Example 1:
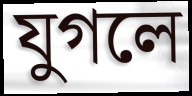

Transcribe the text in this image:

যুগলে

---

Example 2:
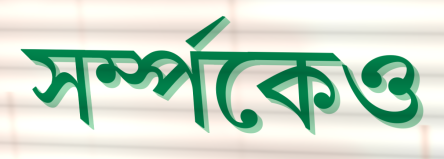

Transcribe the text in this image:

সৰ্ম্পকেও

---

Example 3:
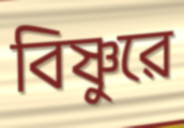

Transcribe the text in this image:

বিষ্ণুৱে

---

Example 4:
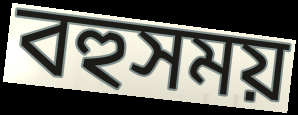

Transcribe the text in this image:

বহুসময়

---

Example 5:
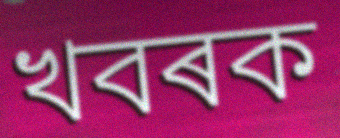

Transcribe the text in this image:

খবৰক